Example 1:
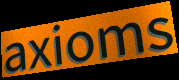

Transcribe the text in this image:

axioms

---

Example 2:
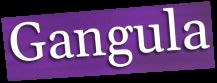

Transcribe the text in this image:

Gangula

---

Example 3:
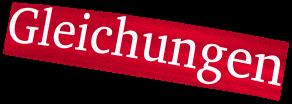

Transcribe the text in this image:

Gleichungen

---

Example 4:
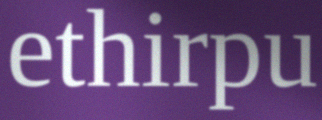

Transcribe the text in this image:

ethirpu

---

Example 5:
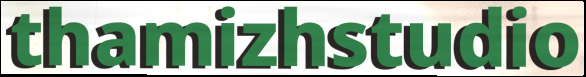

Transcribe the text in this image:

thamizhstudio